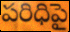
పరిధిపై